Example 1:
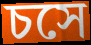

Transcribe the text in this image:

চসে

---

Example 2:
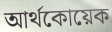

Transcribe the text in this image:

আর্থকোয়েক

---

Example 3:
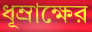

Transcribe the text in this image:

ধূম্রাক্ষের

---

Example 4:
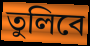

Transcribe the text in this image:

তুলিবে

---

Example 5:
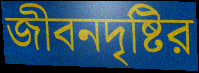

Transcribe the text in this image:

জীবনদৃষ্টির